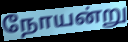
நோயன்று